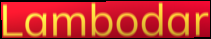
Lambodar